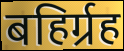
बहिर्ग्रह